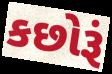
કછોરૂં